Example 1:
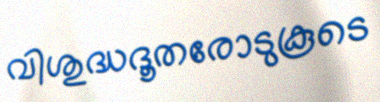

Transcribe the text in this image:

വിശുദ്ധദൂതരോടുകൂടെ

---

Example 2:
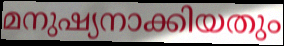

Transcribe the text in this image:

മനുഷ്യനാക്കിയതും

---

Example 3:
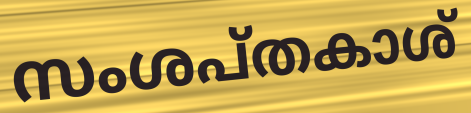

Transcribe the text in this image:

സംശപ്തകാശ്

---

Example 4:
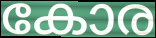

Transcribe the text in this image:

കോര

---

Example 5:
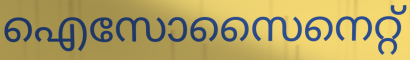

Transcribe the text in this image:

ഐസോസൈനെറ്റ്